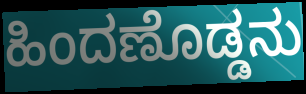
ಹಿಂದಣೊಡ್ಡನು